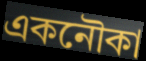
একনৌকা